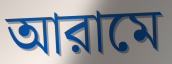
আরামে